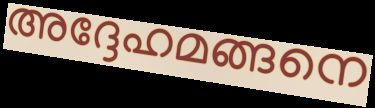
അദ്ദേഹമങ്ങനെ